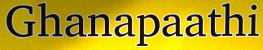
Ghanapaathi